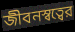
জীবনস্বত্বের